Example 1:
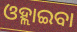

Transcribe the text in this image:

ଓହ୍ଲାଇବା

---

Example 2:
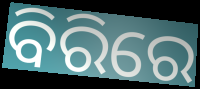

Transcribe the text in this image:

ବିରିରେ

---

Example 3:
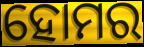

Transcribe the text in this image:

ହୋମର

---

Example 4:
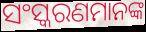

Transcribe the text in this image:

ସଂସ୍କରଣମାନଙ୍କ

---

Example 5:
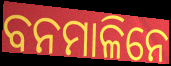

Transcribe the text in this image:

ବନମାଳିନେ